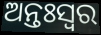
ଅନ୍ତଃସ୍ଵର